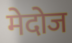
मेदोज